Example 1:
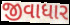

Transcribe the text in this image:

જીવાધાર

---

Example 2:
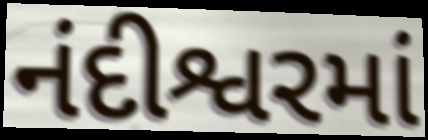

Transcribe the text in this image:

નંદીશ્વરમાં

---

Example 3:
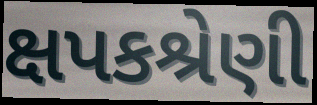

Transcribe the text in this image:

ક્ષપકશ્રેણી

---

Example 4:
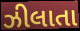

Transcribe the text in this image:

ઝીલાતા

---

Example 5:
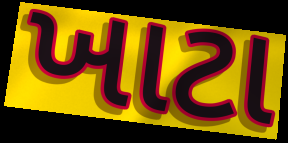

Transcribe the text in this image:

ખાટા